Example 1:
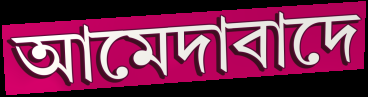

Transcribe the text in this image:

আমেদাবাদে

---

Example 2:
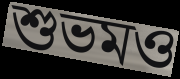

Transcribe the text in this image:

শুভমও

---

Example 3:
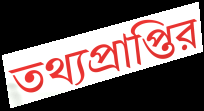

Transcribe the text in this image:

তথ্যপ্রাপ্তির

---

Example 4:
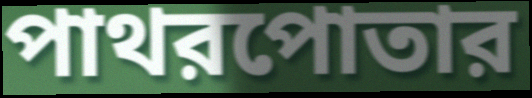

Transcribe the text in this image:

পাথরপোতার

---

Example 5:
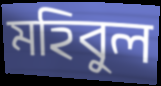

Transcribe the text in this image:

মহিবুল